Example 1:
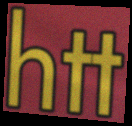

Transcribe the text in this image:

htt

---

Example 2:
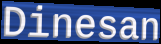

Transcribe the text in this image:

Dinesan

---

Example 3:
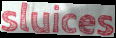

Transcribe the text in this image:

sluices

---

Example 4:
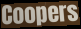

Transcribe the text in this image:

Coopers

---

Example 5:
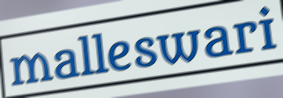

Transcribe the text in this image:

malleswari